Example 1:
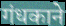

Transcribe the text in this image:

गंधकाने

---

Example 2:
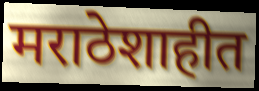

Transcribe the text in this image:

मराठेशाहीत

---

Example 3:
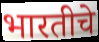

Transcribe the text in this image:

भारतीचे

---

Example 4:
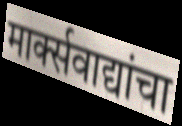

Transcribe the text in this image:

मार्क्‍सवाद्यांचा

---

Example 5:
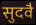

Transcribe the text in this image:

सुदवै